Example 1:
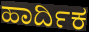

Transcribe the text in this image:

ಹಾರ್ದಿಕ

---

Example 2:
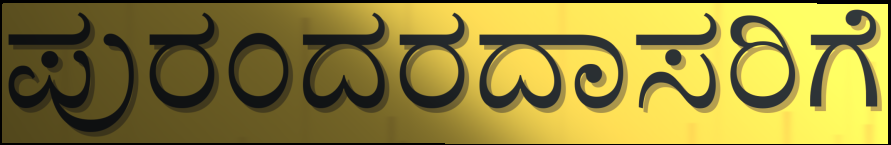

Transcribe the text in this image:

ಪುರಂದರದಾಸರಿಗೆ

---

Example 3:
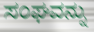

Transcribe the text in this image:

ಸಂಘವನ್ನು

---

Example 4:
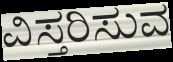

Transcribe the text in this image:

ವಿಸ್ತರಿಸುವ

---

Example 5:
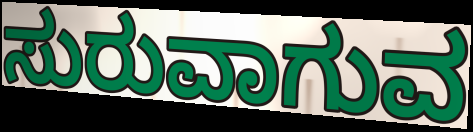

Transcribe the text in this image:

ಸುರುವಾಗುವ